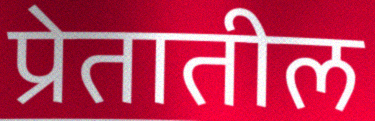
प्रेतातील